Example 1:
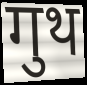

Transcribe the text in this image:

गुथ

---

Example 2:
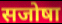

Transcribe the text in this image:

सजोषा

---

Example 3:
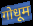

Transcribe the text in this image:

गोधूम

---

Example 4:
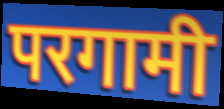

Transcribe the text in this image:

परगामी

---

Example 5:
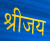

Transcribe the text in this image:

श्रीजय